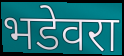
भडेवरा